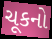
ચૂકનો